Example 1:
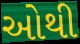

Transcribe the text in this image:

ઓથી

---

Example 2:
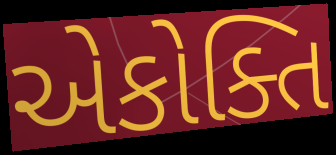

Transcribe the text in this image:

એકોક્તિ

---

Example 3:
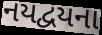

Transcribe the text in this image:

નયદ્વયના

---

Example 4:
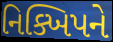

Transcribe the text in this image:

નિક્ખિપને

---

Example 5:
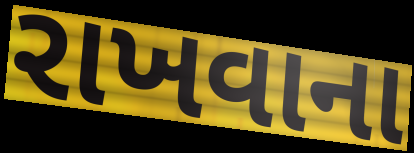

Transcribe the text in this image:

રાખવાના